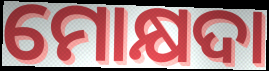
ମୋକ୍ଷଦା